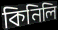
কিনিলি